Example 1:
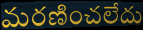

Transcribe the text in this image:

మరణించలేదు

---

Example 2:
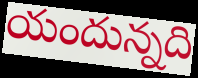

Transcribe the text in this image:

యందున్నది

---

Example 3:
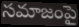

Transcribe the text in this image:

సమాజంపై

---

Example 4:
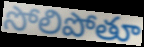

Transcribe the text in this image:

సోలిపోతూ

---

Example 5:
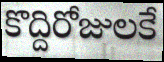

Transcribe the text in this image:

కొద్దిరోజులకే